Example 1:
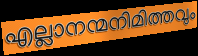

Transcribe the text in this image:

എല്ലാനന്മനിമിത്തവും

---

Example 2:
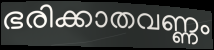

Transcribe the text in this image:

ഭരിക്കാതവണ്ണം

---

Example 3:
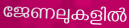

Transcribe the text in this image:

ജേണലുകളിൽ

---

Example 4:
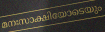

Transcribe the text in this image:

മനഃസാക്ഷിയോടെയും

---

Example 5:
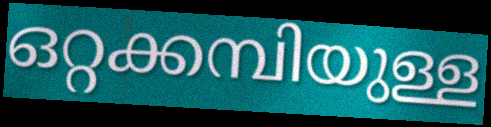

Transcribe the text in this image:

ഒറ്റക്കമ്പിയുള്ള